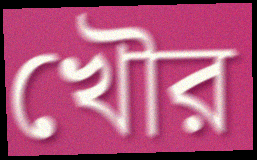
খৌর